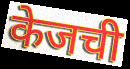
केजची